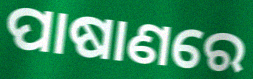
ପାଷାଣରେ